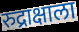
रुद्राक्षाला